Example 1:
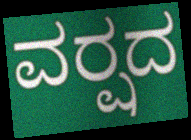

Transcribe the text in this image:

ವರ್‍ಷದ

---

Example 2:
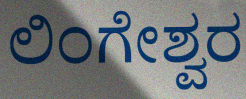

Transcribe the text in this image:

ಲಿಂಗೇಶ್ವರ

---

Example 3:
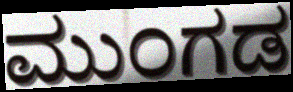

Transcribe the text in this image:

ಮುಂಗಡ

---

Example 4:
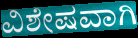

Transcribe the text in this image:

ವಿಶೇಷವಾಗಿ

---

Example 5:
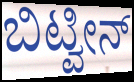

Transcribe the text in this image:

ಬಿಟ್ವೀನ್